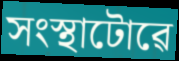
সংস্থাটোৱে